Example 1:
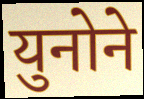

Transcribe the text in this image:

युनोने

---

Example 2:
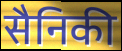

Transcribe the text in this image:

सैनिकी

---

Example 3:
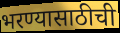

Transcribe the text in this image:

भरण्यासाठीची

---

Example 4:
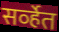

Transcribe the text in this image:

सर्व्हेत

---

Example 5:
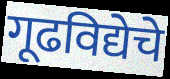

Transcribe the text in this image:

गूढविद्येचे